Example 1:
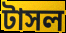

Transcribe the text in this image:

টাসল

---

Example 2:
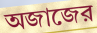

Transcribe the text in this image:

অজাজের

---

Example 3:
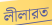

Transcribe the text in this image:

লীলারত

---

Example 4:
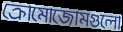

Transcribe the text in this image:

ক্রোমোজোমগুলো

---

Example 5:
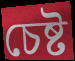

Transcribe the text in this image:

চেষ্ট